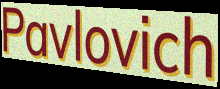
Pavlovich